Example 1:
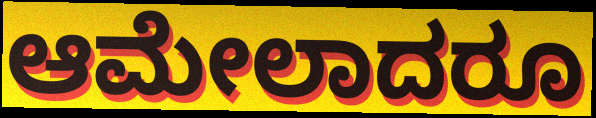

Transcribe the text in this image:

ಆಮೇಲಾದರೂ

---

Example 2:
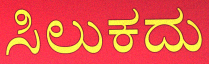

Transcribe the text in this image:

ಸಿಲುಕದು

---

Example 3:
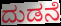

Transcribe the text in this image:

ದುಡನೆ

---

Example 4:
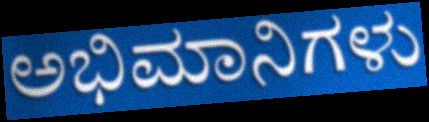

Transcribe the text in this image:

ಅಭಿಮಾನಿಗಳು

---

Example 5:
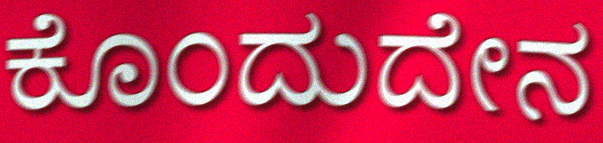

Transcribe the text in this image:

ಕೊಂದುದೇನ